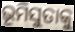
ଭୂମିସୁତାକୁ